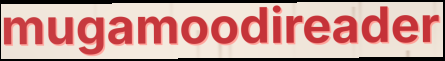
mugamoodireader